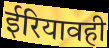
ईरियावही